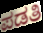
ಪಡತಿ